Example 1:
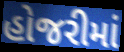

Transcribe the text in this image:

હોજરીમાં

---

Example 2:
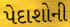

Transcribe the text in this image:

પેદાશોની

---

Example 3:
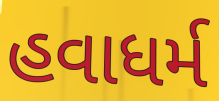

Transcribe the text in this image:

હવાધર્મ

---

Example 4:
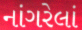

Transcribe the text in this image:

નાંગરેલાં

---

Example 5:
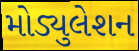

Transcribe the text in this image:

મોડ્યુલેશન